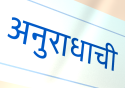
अनुराधाची